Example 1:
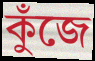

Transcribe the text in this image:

কুঁজে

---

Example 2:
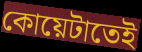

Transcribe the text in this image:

কোয়েটাতেই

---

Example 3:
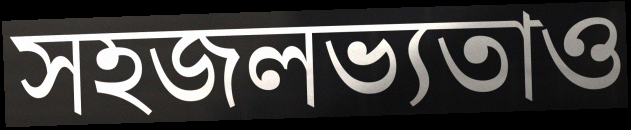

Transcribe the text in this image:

সহজলভ্যতাও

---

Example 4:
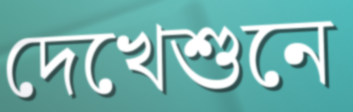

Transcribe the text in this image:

দেখেশুনে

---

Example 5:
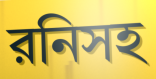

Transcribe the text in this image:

রনিসহ